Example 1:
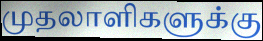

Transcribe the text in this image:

முதலாளிகளுக்கு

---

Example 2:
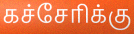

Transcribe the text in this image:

கச்சேரிக்கு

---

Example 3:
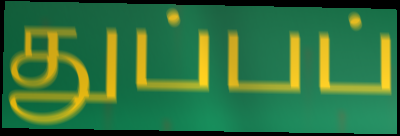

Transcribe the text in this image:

துப்பப்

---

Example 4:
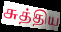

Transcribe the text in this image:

சுத்திய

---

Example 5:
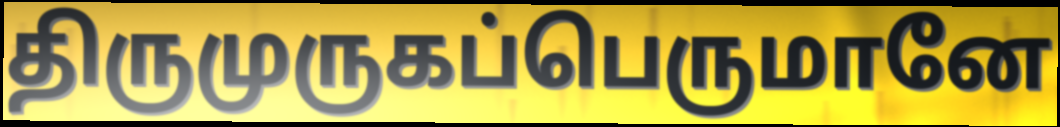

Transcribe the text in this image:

திருமுருகப்பெருமானே